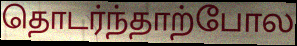
தொடர்ந்தாற்போல